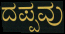
ದಪ್ಪವು